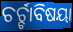
ଚର୍ଚ୍ଚାବିଷୟା